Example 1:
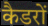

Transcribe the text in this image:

कैडरों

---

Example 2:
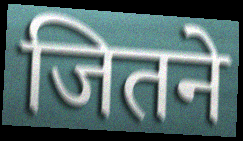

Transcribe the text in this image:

जितने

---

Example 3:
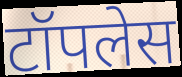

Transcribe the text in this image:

टॉपलेस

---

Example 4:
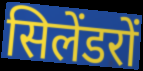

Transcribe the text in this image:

सिलेंडरों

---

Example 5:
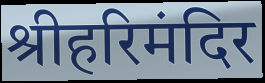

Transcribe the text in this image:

श्रीहरिमंदिर